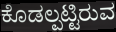
ಕೊಡಲ್ಪಟ್ಟಿರುವ